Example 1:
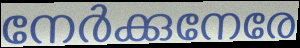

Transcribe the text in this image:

നേർക്കുനേരേ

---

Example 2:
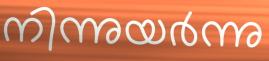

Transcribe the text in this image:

നിന്നുയർന്നു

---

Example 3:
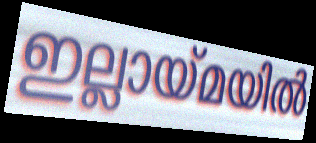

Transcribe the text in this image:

ഇല്ലായ്മയിൽ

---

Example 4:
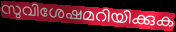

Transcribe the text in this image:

സുവിശേഷമറിയിക്കുക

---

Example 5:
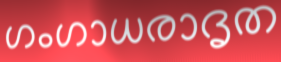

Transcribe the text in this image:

ഗംഗാധരാദൃത